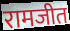
रामजीत